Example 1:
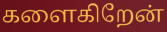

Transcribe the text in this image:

களைகிறேன்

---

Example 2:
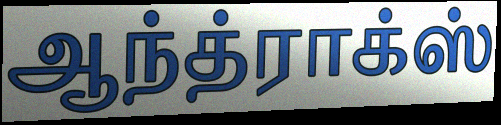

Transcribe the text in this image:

ஆந்த்ராக்ஸ்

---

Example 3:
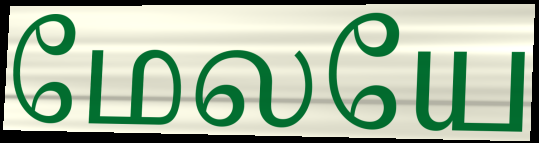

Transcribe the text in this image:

மேலயே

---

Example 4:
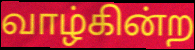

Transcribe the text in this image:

வாழ்கின்ற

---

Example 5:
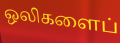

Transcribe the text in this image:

ஒலிகளைப்